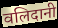
वलिदानी